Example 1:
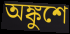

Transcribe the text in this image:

অঙ্কুশে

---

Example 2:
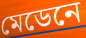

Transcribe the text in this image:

মেডেনে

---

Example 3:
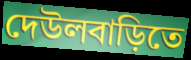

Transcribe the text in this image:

দেউলবাড়িতে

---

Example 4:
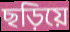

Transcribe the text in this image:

ছড়িয়ে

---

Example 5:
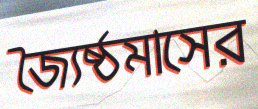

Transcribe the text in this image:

জ্যৈষ্ঠমাসের